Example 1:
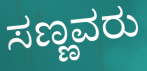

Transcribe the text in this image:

ಸಣ್ಣವರು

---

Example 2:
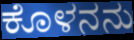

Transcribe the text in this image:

ಕೊಳನನು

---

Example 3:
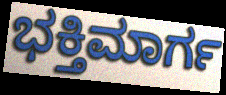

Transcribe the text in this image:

ಭಕ್ತಿಮಾರ್ಗ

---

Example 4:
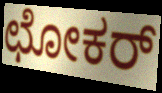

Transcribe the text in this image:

ಛೋಕರ್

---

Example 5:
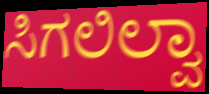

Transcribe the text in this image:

ಸಿಗಲಿಲ್ವಾ